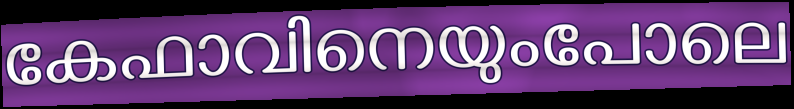
കേഫാവിനെയുംപോലെ